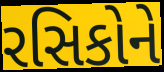
રસિકોને